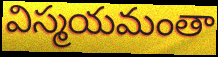
విస్మయమంతా